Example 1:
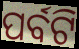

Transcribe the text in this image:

ପର୍ବଟି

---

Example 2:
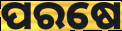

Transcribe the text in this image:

ପରଷେ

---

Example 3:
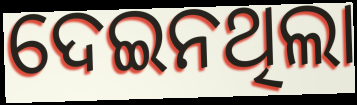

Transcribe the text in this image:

ଦେଇନଥିଲା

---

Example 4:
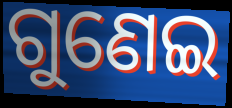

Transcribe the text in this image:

ଗୁଣେଇ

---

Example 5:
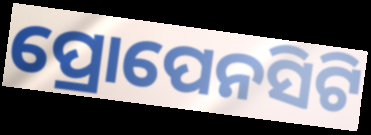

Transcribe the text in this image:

ପ୍ରୋପେନସିଟି